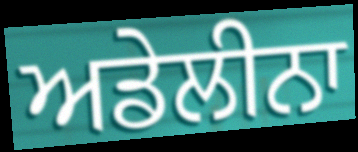
ਅਡੇਲੀਨਾ